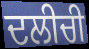
ਦਲੀਚੀ